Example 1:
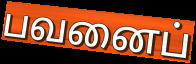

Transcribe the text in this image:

பவனைப்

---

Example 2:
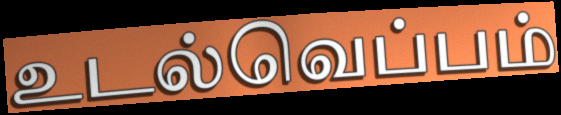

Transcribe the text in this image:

உடல்வெப்பம்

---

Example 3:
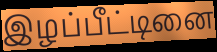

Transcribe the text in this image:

இழப்பீட்டினை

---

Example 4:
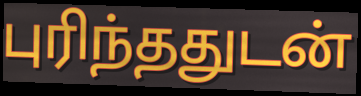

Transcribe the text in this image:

புரிந்ததுடன்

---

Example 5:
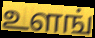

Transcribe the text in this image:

உளங்